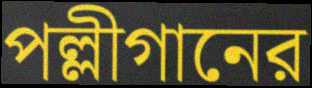
পল্লীগানের